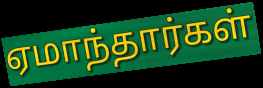
ஏமாந்தார்கள்